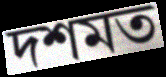
দশমত